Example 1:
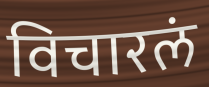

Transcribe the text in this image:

विचारलं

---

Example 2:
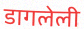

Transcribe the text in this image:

डागलेली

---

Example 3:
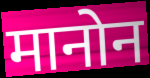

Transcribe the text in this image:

मानोन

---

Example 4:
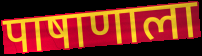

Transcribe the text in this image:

पाषाणाला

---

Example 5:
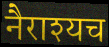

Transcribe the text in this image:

नैराश्यच